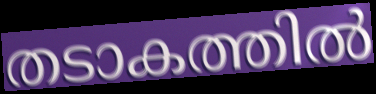
തടാകത്തിൽ